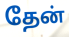
தேன்